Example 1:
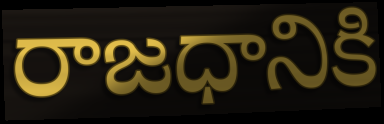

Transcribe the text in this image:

రాజధానికి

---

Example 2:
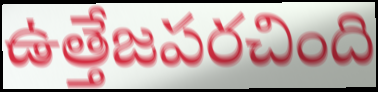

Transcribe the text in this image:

ఉత్తేజపరచింది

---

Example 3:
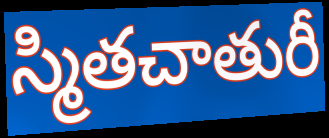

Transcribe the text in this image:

స్మితచాతురీ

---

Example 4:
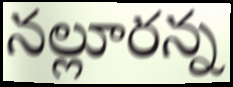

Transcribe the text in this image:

నల్లూరన్న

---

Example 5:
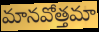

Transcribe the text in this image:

మానవోత్తమా